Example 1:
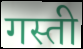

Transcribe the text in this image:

गस्ती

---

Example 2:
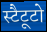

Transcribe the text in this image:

स्टैटूटो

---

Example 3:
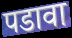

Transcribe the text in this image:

पडावा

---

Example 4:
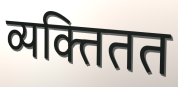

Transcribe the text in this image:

व्यक्तितत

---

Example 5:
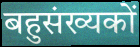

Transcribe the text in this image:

बहुसंख्यकों